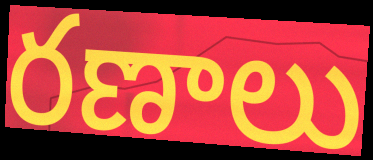
రణాలు